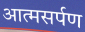
आत्मसर्पण